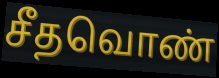
சீதவொண்